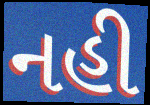
નહી